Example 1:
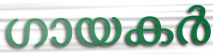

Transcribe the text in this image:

ഗായകർ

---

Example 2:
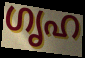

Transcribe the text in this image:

ഗൃഹ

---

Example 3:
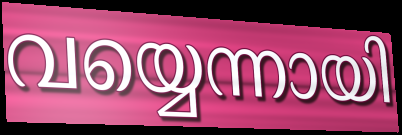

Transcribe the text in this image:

വയ്യെന്നായി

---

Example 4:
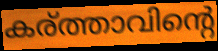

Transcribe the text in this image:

കര്ത്താവിന്റെ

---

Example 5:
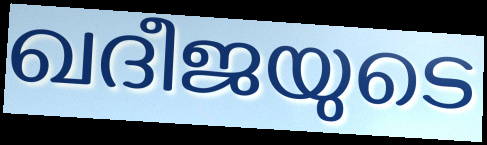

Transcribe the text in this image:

ഖദീജയുടെ